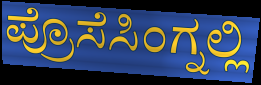
ಪ್ರೊಸೆಸಿಂಗ್ನಲ್ಲಿ